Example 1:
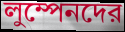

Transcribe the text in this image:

লুম্পেনদের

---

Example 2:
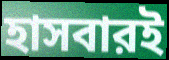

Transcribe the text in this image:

হাসবারই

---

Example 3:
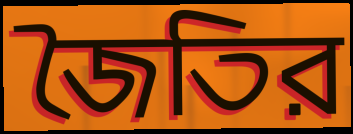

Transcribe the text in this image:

জৈতির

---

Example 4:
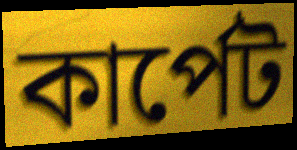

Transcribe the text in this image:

কার্পেট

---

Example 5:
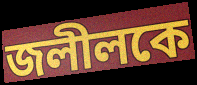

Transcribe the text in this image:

জলীলকে